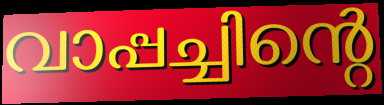
വാപ്പച്ചിന്റെ